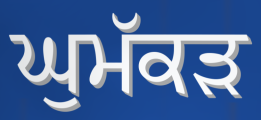
ਘੁਮੱਕਡ਼